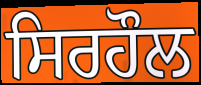
ਸਿਰਹੌਲ